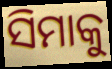
ସିମାକୁ